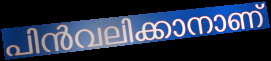
പിൻവലിക്കാനാണ്